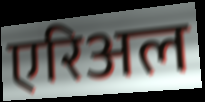
एरिअल